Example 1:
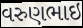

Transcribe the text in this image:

વરુણભાઇ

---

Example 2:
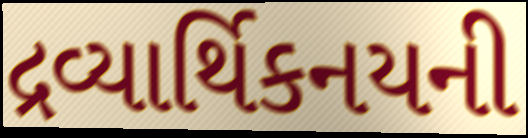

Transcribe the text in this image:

દ્રવ્યાર્થિકનયની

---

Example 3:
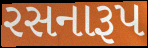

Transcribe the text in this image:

રસનારૂપ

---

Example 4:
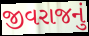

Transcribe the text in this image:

જીવરાજનું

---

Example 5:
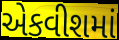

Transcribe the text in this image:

એકવીશમાં